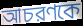
আচরণকে